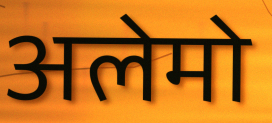
अलेमो